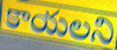
కాయలని